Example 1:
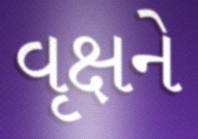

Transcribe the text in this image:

વૃક્ષને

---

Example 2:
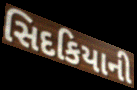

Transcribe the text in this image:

સિદકિયાની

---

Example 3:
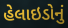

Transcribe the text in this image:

હેલાઇડોનું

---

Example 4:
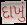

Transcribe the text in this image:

દાખું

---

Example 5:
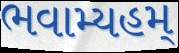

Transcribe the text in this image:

ભવામ્યહમ્